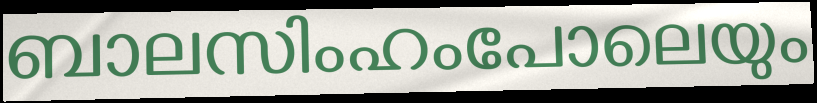
ബാലസിംഹംപോലെയും